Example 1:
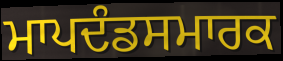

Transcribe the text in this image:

ਮਾਪਦੰਡਸਮਾਰਕ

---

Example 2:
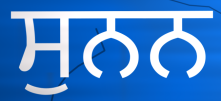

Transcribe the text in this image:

ਸੁਨਨ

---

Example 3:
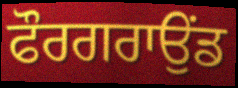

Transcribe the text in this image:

ਫੌਰਗਰਾਉਂਡ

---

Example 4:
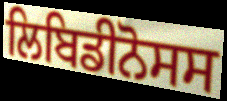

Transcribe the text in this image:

ਲਿਬਿਡੀਨੋਸਸ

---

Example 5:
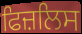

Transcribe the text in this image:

ਫਿਜ਼ਲਿਸ